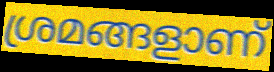
ശ്രമങ്ങളാണ്